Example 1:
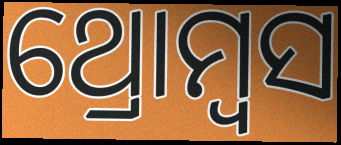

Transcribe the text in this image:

ଥ୍ରୋମ୍ବସ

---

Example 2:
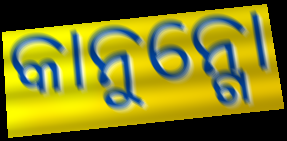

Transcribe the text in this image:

କାନୁନ୍ଗୋ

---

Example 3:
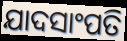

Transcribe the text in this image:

ଯାଦସାଂପତି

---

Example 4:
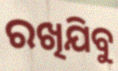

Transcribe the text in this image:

ରଖିଯିବୁ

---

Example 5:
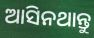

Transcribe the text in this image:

ଆସିନଥାନ୍ତୁ